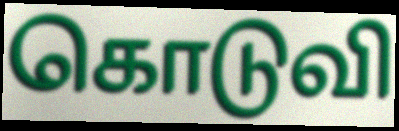
கொடுவி